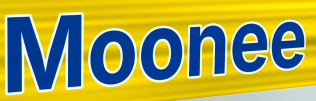
Moonee